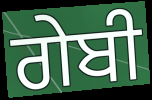
ਗੇਬੀ